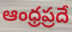
ఆంధ్రప్రదే